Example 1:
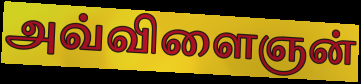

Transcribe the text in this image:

அவ்விளைஞன்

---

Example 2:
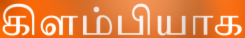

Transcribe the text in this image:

கிளம்பியாக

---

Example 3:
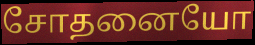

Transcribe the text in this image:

சோதனையோ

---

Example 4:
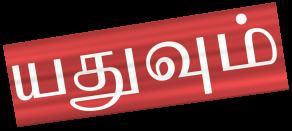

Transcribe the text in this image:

யதுவும்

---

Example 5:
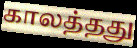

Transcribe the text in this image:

காலத்தது